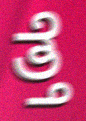
ತ್ತೆ